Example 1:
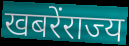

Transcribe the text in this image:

खबरेंराज्य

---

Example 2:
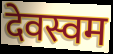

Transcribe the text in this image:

देवस्वम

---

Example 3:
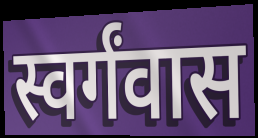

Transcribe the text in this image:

स्वर्गंवास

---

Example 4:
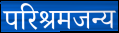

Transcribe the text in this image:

परिश्रमजन्य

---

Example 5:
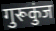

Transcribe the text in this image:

गुरूकुंज